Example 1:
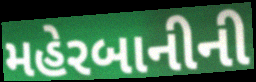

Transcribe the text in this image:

મહેરબાનીની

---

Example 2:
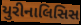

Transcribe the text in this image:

યુરીનાલિસિસ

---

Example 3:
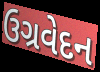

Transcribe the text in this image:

ઉગ્રવેદન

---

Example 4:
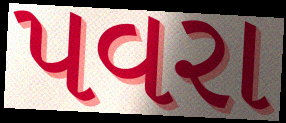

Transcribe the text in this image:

પવરા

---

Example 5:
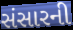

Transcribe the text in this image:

સંસારની